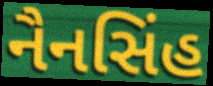
નૈનસિંહ